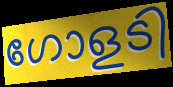
ഗോളടി